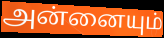
அன்னையும்